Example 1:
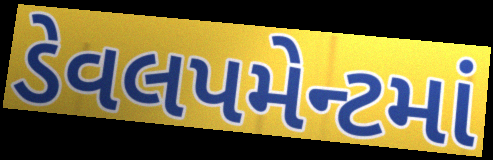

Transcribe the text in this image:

ડેવલપમેન્ટમાં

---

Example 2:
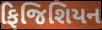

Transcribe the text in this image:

ફિજિશિયન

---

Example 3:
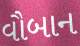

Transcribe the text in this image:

વૌબાન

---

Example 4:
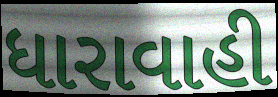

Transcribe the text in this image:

ધારાવાહી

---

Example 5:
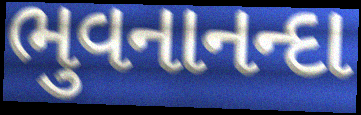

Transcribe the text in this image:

ભુવનાનન્દા